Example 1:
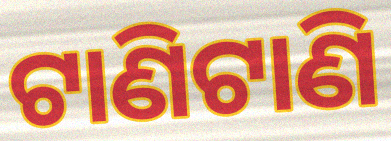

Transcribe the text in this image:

ଟାଣିଟାଣି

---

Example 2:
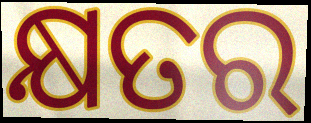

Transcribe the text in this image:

କ୍ଷତର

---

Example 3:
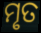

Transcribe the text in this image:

ମୃତ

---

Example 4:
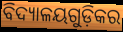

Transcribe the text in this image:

ବିଦ୍ୟାଳୟଗୁଡ଼ିକର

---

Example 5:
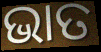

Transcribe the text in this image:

ଭାତ